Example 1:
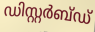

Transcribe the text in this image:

ഡിസ്റ്റർബ്ഡ്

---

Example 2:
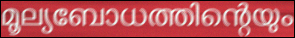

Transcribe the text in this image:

മൂല്യബോധത്തിന്റെയും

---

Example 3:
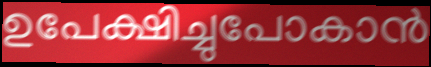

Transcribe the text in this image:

ഉപേക്ഷിച്ചുപോകാൻ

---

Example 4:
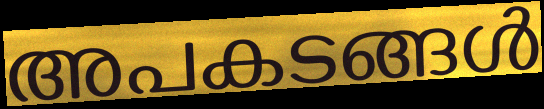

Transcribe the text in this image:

അപകടങ്ങൾ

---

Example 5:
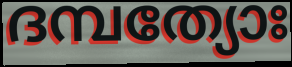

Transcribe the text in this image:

ദമ്പത്യോഃ